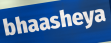
bhaasheya